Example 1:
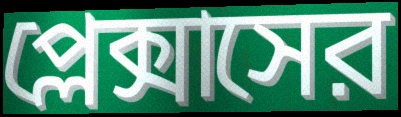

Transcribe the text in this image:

প্লেক্সাসের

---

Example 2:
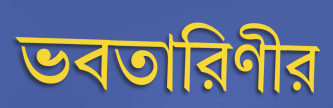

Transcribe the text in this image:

ভবতারিণীর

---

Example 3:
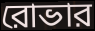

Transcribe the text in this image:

রোভার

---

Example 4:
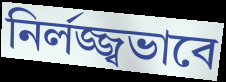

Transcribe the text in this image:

নির্লজ্জ্বভাবে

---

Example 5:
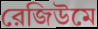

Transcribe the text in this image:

রেজিউমে